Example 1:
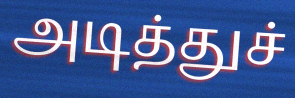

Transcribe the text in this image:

அடித்துச்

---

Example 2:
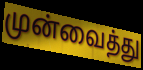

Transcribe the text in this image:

முன்வைத்து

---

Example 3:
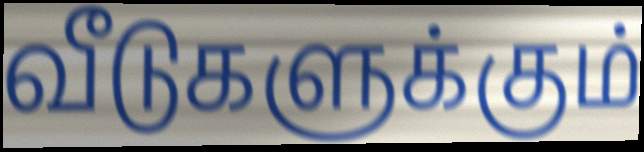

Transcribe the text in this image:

வீடுகளுக்கும்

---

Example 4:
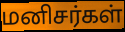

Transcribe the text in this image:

மனிசர்கள்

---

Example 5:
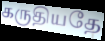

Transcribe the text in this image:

கருதியதே